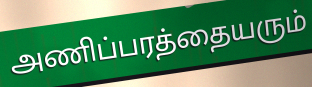
அணிப்பரத்தையரும்